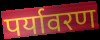
पर्यावरण